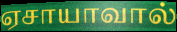
ஏசாயாவால்